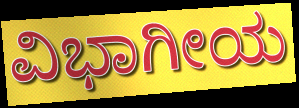
ವಿಭಾಗೀಯ